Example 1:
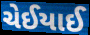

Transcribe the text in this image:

ચેઈયાઈ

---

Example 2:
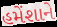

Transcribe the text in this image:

હમેંશાને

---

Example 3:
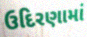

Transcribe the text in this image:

ઉદિરણામાં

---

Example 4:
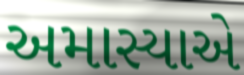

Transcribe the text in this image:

અમાસ્યાએ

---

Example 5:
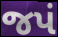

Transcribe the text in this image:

જપં